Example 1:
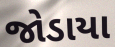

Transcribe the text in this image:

જોડાયા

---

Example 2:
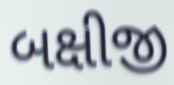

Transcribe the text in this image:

બક્ષીજી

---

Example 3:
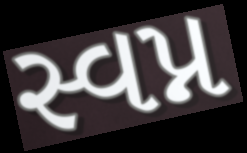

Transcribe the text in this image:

સ્વપ્ન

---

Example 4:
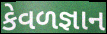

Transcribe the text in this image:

કેવળજ્ઞાન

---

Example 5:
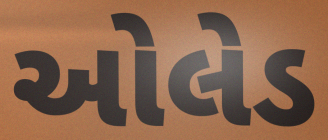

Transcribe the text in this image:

ઓલેડ